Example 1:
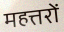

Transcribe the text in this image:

महत्तरों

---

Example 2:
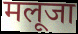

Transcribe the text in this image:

मलूजा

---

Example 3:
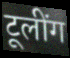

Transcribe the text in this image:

टूलींग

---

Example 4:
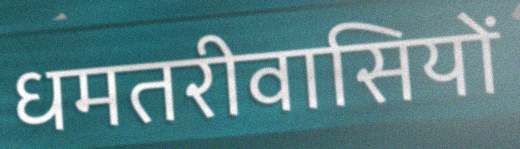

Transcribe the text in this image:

धमतरीवासियों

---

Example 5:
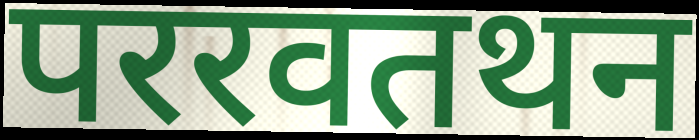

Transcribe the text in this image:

पररवतथन